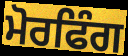
ਮੋਰਫਿੰਗ